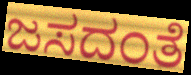
ಜಸದಂತೆ